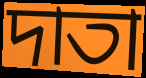
দাতা